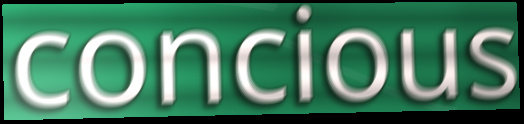
concious